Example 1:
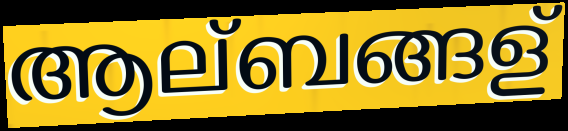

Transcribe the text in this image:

ആല്ബങ്ങള്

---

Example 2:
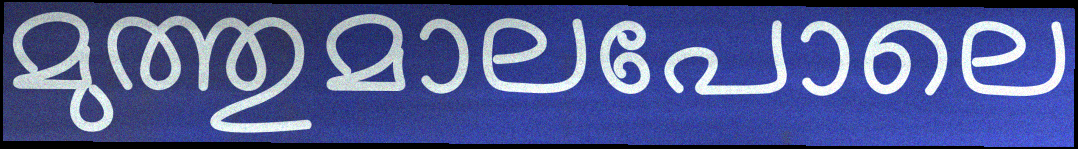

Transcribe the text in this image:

മുത്തുമാലപോലെ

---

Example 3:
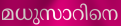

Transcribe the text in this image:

മധുസാറിനെ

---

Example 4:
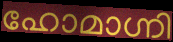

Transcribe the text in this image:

ഹോമാഗ്നി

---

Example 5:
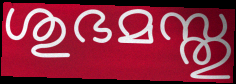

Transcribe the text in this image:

ശുഭമസ്തു